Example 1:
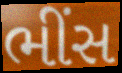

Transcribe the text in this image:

ભીંસ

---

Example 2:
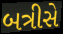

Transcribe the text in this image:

બત્રીસે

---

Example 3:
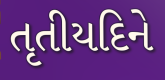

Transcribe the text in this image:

તૃતીયદિને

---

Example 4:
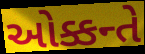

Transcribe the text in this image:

ઓક્કન્તે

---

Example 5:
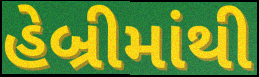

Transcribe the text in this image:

હેબ્રીમાંથી